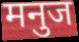
मनुज